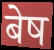
बेष